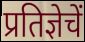
प्रतिज्ञेचें